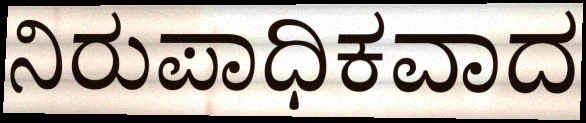
ನಿರುಪಾಧಿಕವಾದ